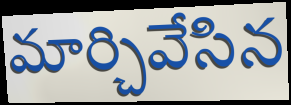
మార్చివేసిన